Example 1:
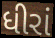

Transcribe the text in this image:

ધીરાં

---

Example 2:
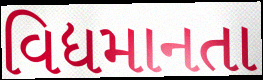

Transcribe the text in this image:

વિદ્યમાનતા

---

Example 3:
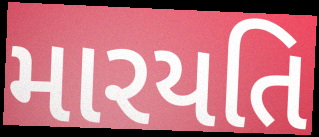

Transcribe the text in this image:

મારયતિ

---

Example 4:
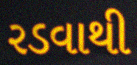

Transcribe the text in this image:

રડવાથી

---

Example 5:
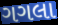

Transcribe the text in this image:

ગગલા